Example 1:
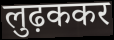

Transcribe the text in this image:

लुढ़ककर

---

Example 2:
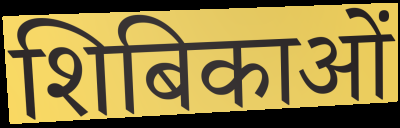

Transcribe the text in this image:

शिबिकाओं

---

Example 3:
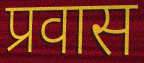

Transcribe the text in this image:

प्रवास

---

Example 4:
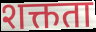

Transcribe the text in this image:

शक्तता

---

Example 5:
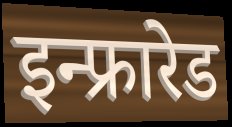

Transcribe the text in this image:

इन्फ्रारेड